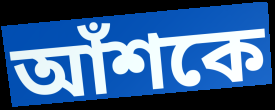
আঁশকে